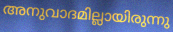
അനുവാദമില്ലായിരുന്നു